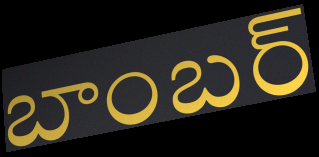
బాంబర్